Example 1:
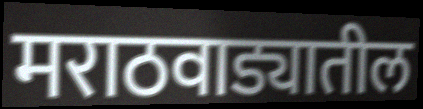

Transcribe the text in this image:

मराठवाड्यातील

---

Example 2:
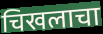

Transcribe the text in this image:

चिखलाचा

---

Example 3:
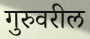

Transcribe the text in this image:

गुरुवरील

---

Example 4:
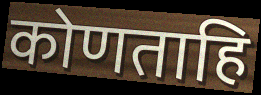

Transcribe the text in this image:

कोणताहि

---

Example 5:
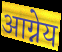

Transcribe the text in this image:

आग्नेय